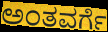
ಅಂತವರ್ಗೆ